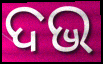
ଦଭ